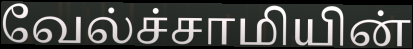
வேல்ச்சாமியின்